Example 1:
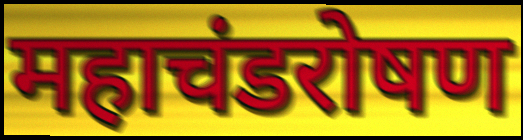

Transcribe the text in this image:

महाचंडरोषण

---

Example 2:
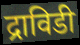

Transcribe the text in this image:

द्राविडी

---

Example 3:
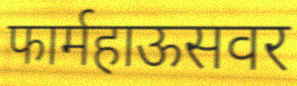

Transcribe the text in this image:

फार्महाऊसवर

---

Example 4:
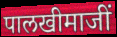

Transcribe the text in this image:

पालखीमाजीं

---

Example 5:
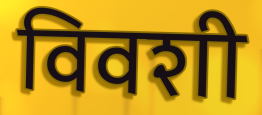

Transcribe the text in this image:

विवशी